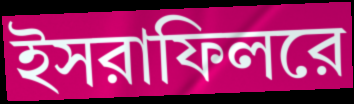
ইসরাফিলরে